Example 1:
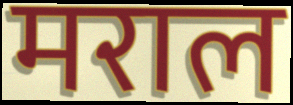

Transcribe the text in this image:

मराल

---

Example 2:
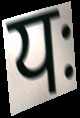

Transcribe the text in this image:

यः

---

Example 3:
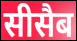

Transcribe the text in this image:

सीसैब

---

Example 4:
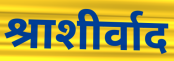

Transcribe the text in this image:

श्राशीर्वाद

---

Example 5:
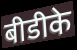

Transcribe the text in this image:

बीडीके